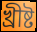
খ্রীষ্ট